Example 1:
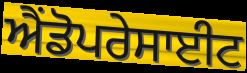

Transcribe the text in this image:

ਐਂਡੋਪਰੇਸਾਈਟ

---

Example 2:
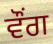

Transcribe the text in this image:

ਵੌਂਗ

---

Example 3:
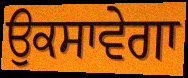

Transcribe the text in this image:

ਉਕਸਾਵੇਗਾ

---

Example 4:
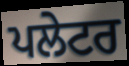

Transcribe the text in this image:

ਪਲੇਟਰ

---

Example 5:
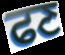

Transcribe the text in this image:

ਫਣ